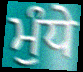
ਮੁੰਧੇ